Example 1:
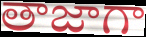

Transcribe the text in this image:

తాజాగా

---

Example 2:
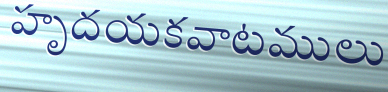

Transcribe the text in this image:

హృదయకవాటములు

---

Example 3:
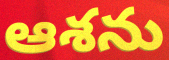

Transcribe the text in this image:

ఆశను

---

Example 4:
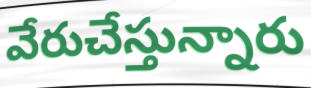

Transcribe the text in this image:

వేరుచేస్తున్నారు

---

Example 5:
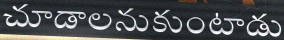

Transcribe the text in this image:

చూడాలనుకుంటాడు